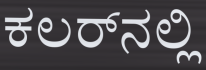
ಕಲರ್‌ನಲ್ಲಿ